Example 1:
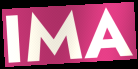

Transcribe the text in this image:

IMA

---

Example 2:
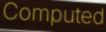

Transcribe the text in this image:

Computed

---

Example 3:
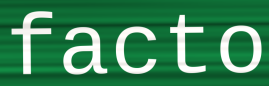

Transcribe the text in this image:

facto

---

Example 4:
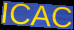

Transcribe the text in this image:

ICAC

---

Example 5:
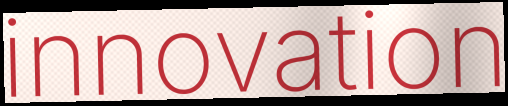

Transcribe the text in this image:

innovation